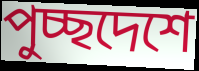
পুচ্ছদেশে